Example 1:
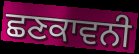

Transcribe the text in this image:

ਛਣਕਾਵਨੀ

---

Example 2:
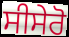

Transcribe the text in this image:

ਸੀਸੇਰੋ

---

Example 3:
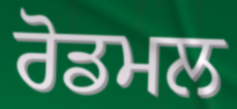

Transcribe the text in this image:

ਰੋਡਮਲ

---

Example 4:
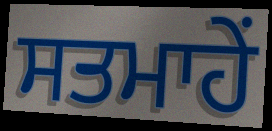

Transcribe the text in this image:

ਸਤਮਾਹੇਂ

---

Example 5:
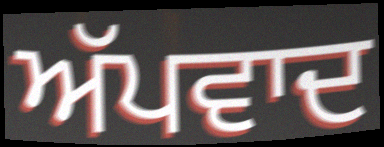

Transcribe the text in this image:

ਅੱਪਵਾਦ